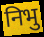
निभु